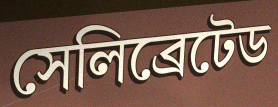
সেলিব্রেটেড